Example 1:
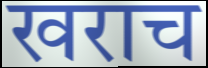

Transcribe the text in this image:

खराच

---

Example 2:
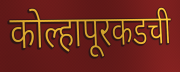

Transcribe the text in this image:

कोल्हापूरकडची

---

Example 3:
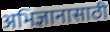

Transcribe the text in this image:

अभिज्ञानासाठी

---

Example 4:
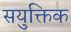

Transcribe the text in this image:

सयुक्तिक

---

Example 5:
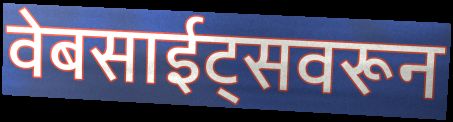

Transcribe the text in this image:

वेबसाईट्सवरून